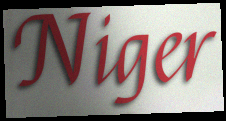
Niger